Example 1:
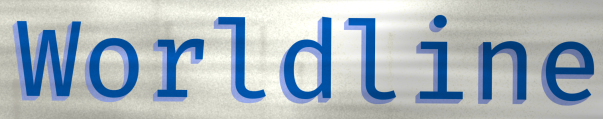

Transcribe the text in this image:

Worldline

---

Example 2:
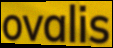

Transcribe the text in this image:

ovalis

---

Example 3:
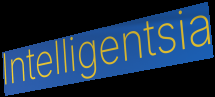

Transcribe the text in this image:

Intelligentsia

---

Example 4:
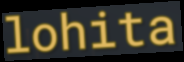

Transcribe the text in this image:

lohita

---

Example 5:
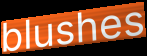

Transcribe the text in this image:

blushes